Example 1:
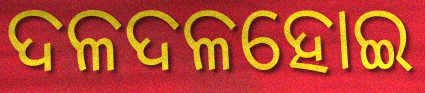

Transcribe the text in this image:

ଦଳଦଳହୋଇ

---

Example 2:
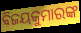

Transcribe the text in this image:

ବିଜୟକୁମାରଙ୍କ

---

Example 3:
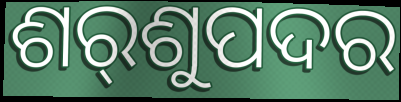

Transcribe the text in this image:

ଶର୍‌ଶୁପଦର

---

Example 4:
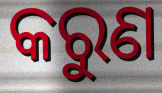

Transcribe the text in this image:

କରୁଣ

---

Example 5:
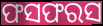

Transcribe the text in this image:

ଫସଫରସ